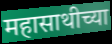
महासाथीच्या